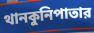
থানকুনিপাতার